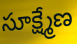
సూక్ష్మేణ